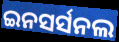
ଇନସର୍ସନଲ